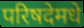
परिषदेमधे